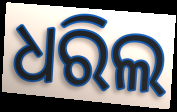
ଧରିଲ